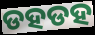
ଡହଡହ